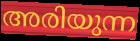
അരിയുന്ന